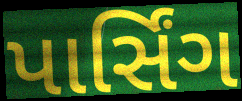
પાર્સિંગ